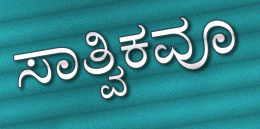
ಸಾತ್ವಿಕವೂ